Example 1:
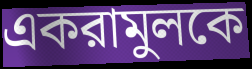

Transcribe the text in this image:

একরামুলকে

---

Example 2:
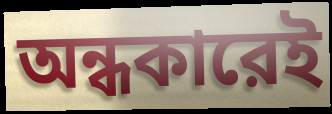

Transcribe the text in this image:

অন্ধকারেই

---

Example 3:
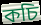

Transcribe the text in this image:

কচি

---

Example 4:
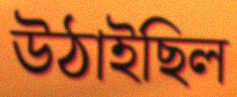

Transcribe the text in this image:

উঠাইছিল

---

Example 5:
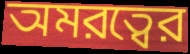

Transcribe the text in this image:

অমরত্বের